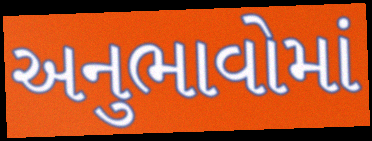
અનુભાવોમાં